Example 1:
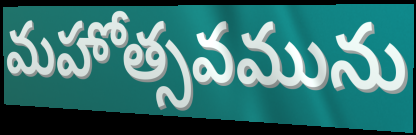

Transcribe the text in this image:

మహోత్సవమును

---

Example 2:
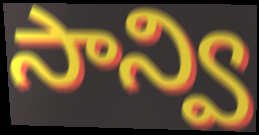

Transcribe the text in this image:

సాన్వి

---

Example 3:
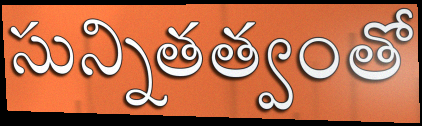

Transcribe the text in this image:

సున్నితత్వంతో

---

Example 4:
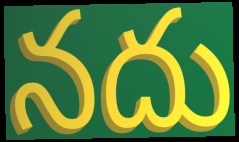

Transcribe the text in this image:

నదు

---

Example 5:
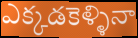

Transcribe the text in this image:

ఎక్కడకెళ్ళినా